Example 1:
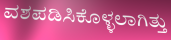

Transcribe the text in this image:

ವಶಪಡಿಸಿಕೊಳ್ಳಲಾಗಿತ್ತು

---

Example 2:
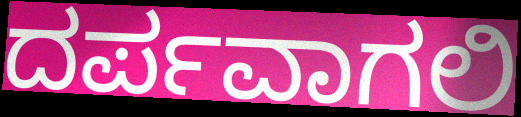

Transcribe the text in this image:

ದರ್ಪವಾಗಲಿ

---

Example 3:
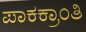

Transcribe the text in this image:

ಪಾಕಕ್ರಾಂತಿ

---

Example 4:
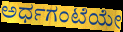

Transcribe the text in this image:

ಅರ್ಧಗಂಟೆಯೇ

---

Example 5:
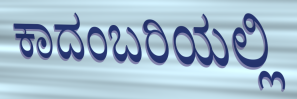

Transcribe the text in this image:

ಕಾದಂಬರಿಯಲ್ಲಿ